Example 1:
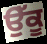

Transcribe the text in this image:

ਉੱਕੂ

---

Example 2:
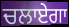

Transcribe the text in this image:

ਚਲਾਏਗਾ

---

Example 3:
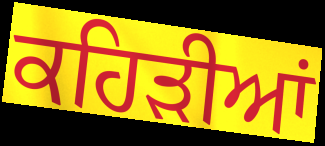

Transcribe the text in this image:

ਕਹਿੜੀਆਂ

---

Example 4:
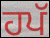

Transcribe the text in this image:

ਹਪੱ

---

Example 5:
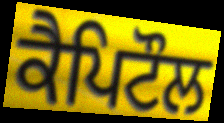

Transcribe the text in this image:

ਕੈਪਿਟੌਲ